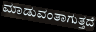
ಮಾಡುವಂತಾಗುತ್ತದೆ